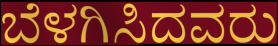
ಬೆಳಗಿಸಿದವರು